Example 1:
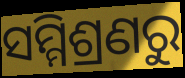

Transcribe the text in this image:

ସମ୍ମିଶ୍ରଣରୁ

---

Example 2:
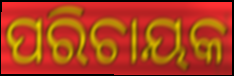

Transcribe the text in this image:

ପରିଚାୟକ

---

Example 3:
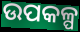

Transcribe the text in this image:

ଉପକଳ୍ପ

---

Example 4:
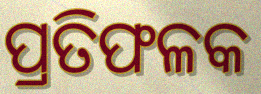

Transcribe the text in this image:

ପ୍ରତିଫଳକ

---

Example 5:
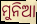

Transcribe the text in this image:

ମୁନିଆ